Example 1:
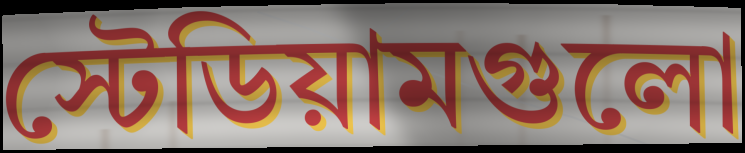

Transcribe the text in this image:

স্টেডিয়ামগুলো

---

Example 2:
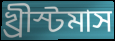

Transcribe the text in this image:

খ্রীস্টমাস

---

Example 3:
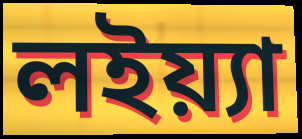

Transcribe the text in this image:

লইয়্যা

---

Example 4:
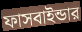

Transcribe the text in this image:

ফাসবাইন্ডার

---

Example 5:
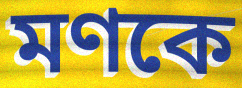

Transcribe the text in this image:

মণকে